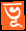
ভূ